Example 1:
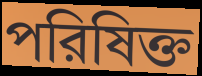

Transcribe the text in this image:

পরিষিক্ত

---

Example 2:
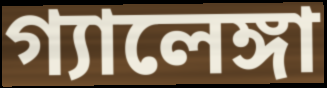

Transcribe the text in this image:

গ্যালেঙ্গা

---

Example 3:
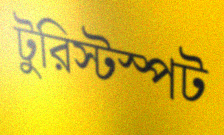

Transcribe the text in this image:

টুরিস্টস্পট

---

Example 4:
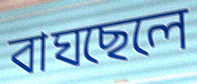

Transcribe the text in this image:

বাঘছেলে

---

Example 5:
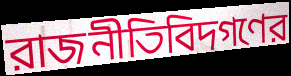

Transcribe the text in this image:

রাজনীতিবিদগণের